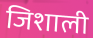
जिशाली